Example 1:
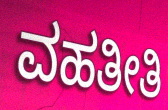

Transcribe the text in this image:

ವಹತೀತಿ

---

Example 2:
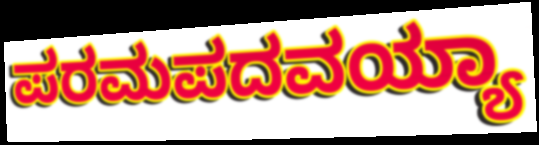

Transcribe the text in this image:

ಪರಮಪದವಯ್ಯಾ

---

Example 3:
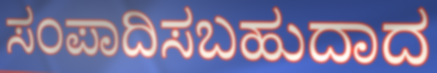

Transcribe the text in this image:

ಸಂಪಾದಿಸಬಹುದಾದ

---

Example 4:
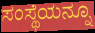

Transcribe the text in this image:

ಸಂಸ್ಥೆಯನ್ನೂ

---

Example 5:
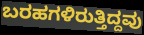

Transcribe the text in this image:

ಬರಹಗಳಿರುತ್ತಿದ್ದವು